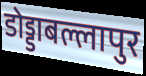
डोड्डाबल्लापुर